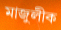
মাজুলীক